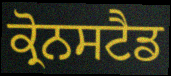
ਕ੍ਰੋਨਸਟੈਡ